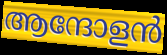
ആന്ദോളൻ